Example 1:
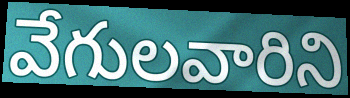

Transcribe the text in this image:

వేగులవారిని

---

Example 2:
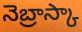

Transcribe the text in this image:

నెబ్రాస్కా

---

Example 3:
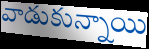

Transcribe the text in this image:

వాడుకున్నాయి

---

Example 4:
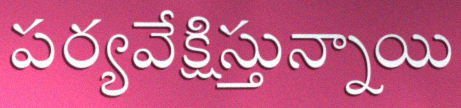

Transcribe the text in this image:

పర్యవేక్షిస్తున్నాయి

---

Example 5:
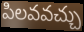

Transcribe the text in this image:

పిలవవచ్చు